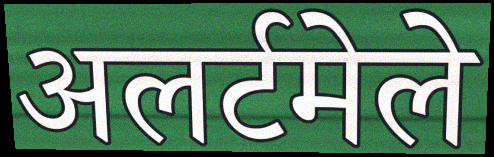
अलर्टमेले